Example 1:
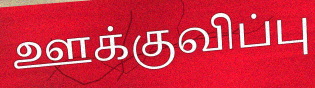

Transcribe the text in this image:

ஊக்குவிப்பு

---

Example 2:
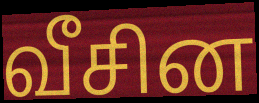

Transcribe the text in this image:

வீசின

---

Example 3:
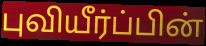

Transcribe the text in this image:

புவியீர்ப்பின்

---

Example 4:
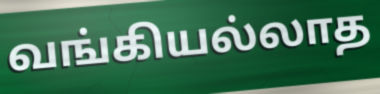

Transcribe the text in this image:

வங்கியல்லாத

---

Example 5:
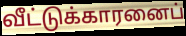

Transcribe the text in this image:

வீட்டுக்காரனைப்